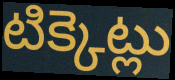
టిక్కెట్లు